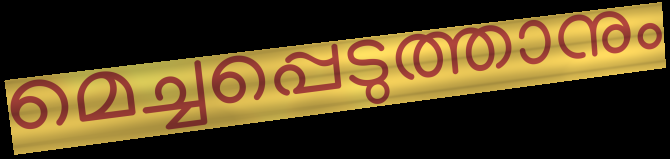
മെച്ചപ്പെടുത്താനും